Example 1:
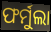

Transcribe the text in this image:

ଫର୍ମୁଲା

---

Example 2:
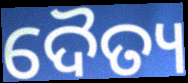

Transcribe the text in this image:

ଦୈତ୍ୟ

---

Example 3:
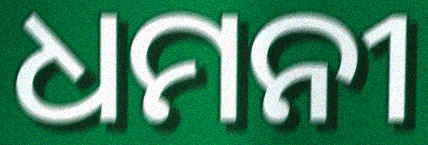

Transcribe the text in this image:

ଧମନୀ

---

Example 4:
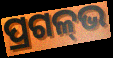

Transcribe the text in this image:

ପ୍ରଗଳ୍‌ଭ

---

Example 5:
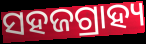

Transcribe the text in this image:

ସହଜଗ୍ରାହ୍ୟ